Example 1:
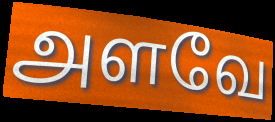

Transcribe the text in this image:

அளவே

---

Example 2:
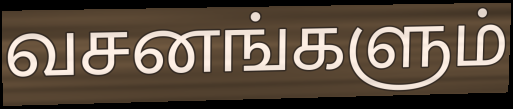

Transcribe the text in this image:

வசனங்களும்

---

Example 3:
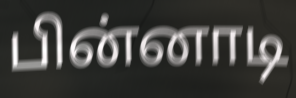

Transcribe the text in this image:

பின்னாடி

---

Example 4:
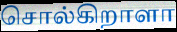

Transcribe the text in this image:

சொல்கிறாளா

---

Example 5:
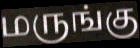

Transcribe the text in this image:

மருங்கு